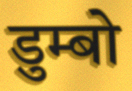
डुम्बो